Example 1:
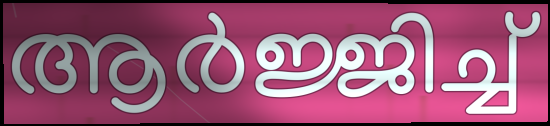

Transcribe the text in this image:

ആർജ്ജിച്ച്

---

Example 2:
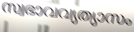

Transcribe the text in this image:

സ്വഭാവവ്യത്യാസം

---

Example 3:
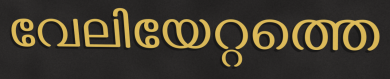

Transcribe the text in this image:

വേലിയേറ്റത്തെ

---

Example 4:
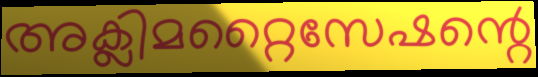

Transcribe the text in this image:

അക്ലിമറ്റൈസേഷന്റെ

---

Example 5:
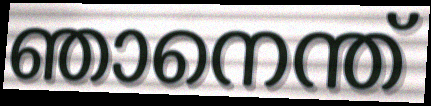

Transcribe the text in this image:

ഞാനെന്ത്